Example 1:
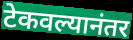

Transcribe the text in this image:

टेकवल्यानंतर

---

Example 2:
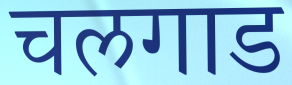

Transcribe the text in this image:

चलगाड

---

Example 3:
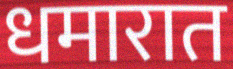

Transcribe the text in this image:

धमारात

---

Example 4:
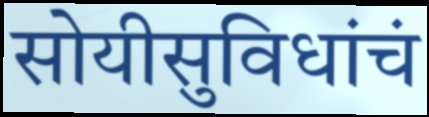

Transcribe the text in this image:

सोयीसुविधांचं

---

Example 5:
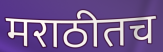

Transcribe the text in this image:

मराठीतच